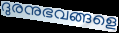
ദുരനുഭവങ്ങളെ